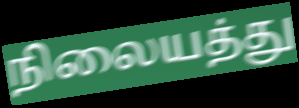
நிலையத்து